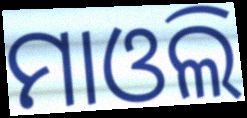
ମାଓଲି